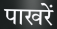
पाखरें